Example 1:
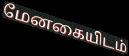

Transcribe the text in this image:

மேனகையிடம்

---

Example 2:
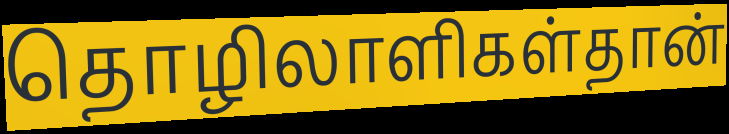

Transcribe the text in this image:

தொழிலாளிகள்தான்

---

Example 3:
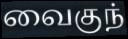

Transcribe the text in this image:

வைகுந்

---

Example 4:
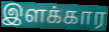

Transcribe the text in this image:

இளக்கார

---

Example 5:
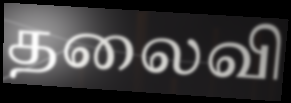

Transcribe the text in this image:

தலைவி